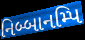
નિબ્બાનમ્પિ